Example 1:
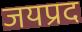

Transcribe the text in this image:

जयप्रद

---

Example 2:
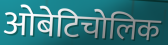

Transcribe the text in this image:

ओबेटिचोलिक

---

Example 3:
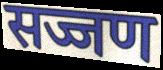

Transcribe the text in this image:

सज्जण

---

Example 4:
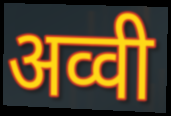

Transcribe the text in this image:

अव्वी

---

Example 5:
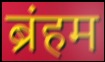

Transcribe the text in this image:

ब्रंहम